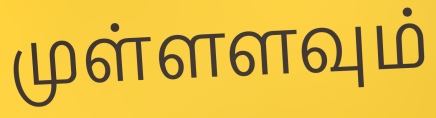
முள்ளளவும்